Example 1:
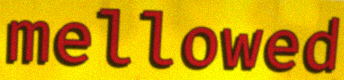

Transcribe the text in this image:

mellowed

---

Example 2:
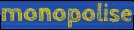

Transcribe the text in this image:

monopolise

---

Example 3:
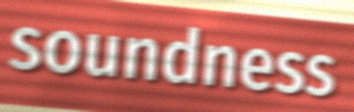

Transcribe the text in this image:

soundness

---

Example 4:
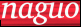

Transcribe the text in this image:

naguo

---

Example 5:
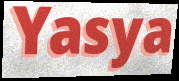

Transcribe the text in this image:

Yasya